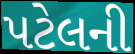
પટેલની